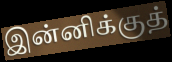
இன்னிக்குத்